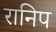
रानिप